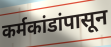
कर्मकांडांपासून